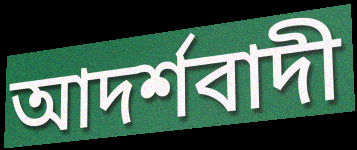
আদর্শবাদী